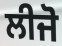
ਲੀਜੋ